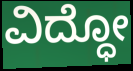
ವಿದ್ಧೋ